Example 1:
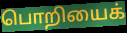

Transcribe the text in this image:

பொறியைக்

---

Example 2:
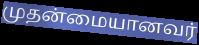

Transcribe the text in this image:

முதன்மையானவர்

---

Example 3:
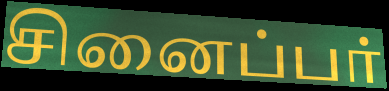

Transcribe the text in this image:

சினைப்பர்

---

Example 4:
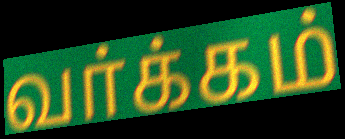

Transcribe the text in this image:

வர்க்கம்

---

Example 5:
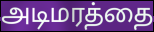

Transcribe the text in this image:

அடிமரத்தை